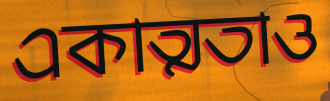
একাত্মতাও